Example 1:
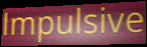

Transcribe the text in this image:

Impulsive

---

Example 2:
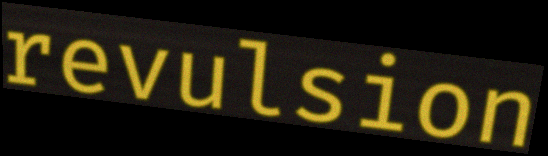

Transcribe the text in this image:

revulsion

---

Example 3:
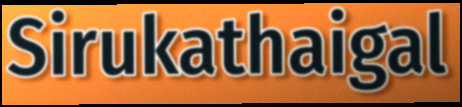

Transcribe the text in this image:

Sirukathaigal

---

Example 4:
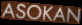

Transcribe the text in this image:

ASOKAN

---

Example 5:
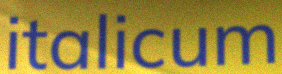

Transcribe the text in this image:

italicum